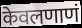
केवलणाणं